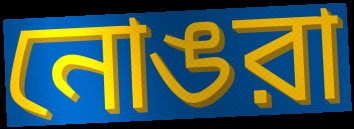
নোঙরা